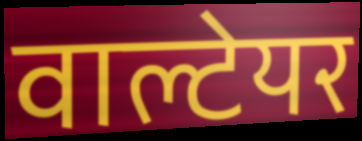
वाल्टेयर